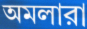
অমলারা